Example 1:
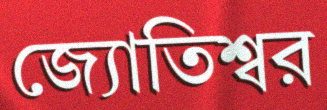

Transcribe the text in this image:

জ্যোতিশ্বর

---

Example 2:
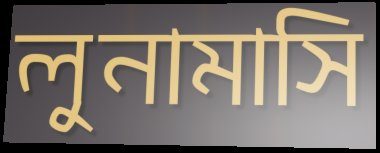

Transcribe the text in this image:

লুনামাসি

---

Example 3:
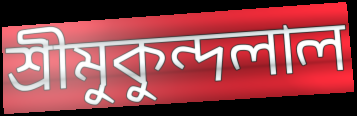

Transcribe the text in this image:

শ্রীমুকুন্দলাল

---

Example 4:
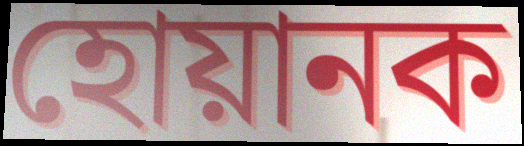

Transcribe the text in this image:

হোয়ানক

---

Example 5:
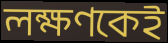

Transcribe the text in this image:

লক্ষণকেই